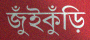
জুঁইকুঁড়ি